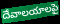
దేవాలయాలపై